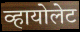
व्हायोलेट